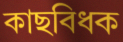
কাছবিধক